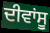
ਦੀਵਾਂਸੂ